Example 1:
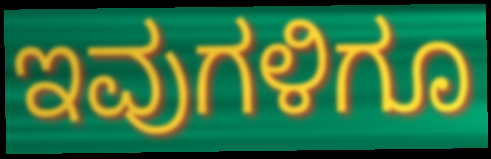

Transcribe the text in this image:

ಇವುಗಳಿಗೂ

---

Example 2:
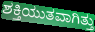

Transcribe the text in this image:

ಶಕ್ತಿಯುತವಾಗಿತ್ತು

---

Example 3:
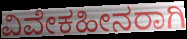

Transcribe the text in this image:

ವಿವೇಕಹೀನರಾಗಿ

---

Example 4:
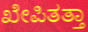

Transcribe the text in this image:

ಖೇಪಿತತ್ತಾ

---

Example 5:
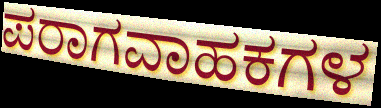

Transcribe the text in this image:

ಪರಾಗವಾಹಕಗಳ